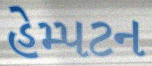
હેમ્પટન